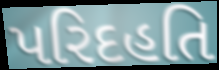
પરિદહતિ